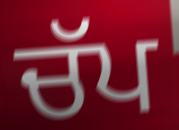
ਚੱਪ